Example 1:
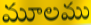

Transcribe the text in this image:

మూలము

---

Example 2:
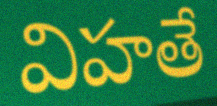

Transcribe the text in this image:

విహతే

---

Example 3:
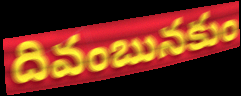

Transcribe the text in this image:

దివంబునకుం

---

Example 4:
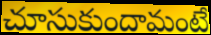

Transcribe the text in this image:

చూసుకుందామంటే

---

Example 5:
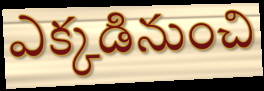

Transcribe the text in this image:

ఎక్కడినుంచి